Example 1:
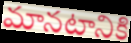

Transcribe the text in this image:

మానటానికి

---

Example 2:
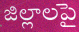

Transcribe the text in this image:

జిల్లాలపై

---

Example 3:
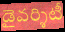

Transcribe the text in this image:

డైవర్శిటీ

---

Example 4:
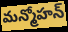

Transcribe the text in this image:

మన్మోహన్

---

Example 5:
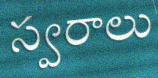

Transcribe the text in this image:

స్వరాలు